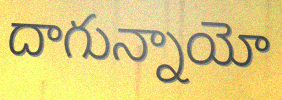
దాగున్నాయో